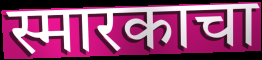
स्मारकाचा